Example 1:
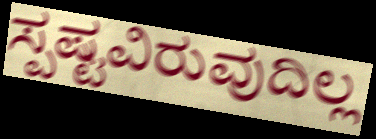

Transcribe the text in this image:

ಸ್ಪಷ್ಟವಿರುವುದಿಲ್ಲ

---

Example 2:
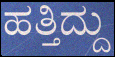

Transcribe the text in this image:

ಹತ್ತಿದ್ದು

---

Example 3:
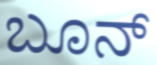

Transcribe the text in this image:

ಬೂನ್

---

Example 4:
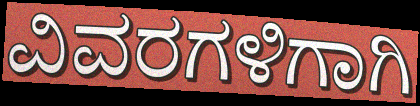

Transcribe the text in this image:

ವಿವರಗಳಿಗಾಗಿ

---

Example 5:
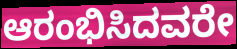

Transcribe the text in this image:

ಆರಂಭಿಸಿದವರೇ